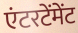
एंटरटेंमेंट